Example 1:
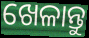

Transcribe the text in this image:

ଖେଳାନ୍ତୁ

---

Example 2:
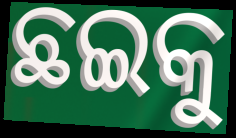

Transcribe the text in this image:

ଛଇକୁ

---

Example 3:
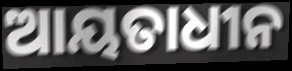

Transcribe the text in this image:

ଆୟତାଧୀନ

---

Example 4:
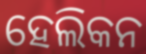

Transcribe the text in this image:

ହେଲିକନ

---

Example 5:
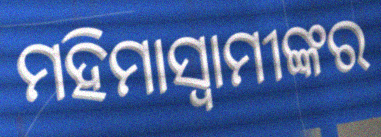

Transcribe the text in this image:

ମହିମାସ୍ୱାମୀଙ୍କର